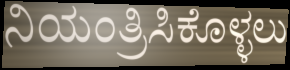
ನಿಯಂತ್ರಿಸಿಕೊಳ್ಳಲು